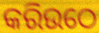
କରିଉଠେ